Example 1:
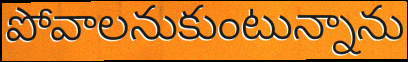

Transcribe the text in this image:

పోవాలనుకుంటున్నాను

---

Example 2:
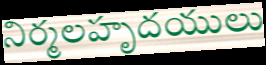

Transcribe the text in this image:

నిర్మలహృదయులు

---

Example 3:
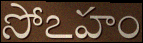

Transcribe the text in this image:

సోఽహం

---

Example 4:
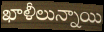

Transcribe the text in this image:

ఖాళీలున్నాయి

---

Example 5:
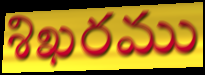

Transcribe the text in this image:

శిఖరము